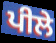
ਪੀਲੇ